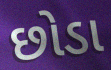
છોડા